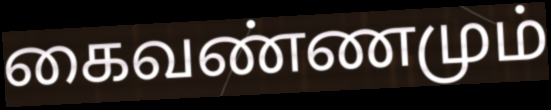
கைவண்ணமும்